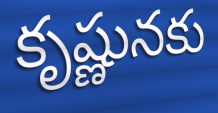
కృష్ణునకు